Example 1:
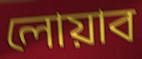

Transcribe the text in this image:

লোয়াব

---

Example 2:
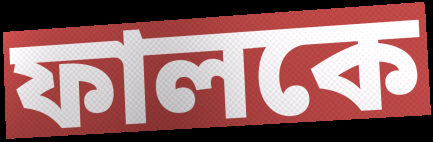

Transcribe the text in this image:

ফালকে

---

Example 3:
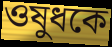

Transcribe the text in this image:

ওষুধকে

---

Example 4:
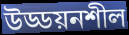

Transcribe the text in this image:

উড্ডয়নশীল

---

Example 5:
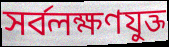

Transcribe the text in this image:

সর্বলক্ষণযুক্ত